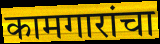
कामगारांचा